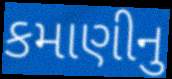
કમાણીનુ